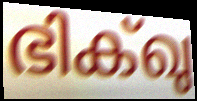
ഭിക്ഖു